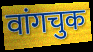
वांगचुक